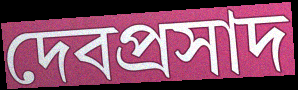
দেবপ্রসাদ